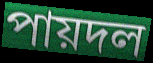
পায়দল